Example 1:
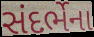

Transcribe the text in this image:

સંદર્ભેના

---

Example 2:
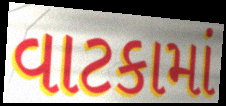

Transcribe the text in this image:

વાટકામાં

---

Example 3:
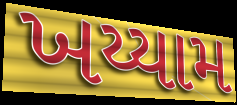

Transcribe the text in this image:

ખય્યામ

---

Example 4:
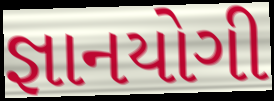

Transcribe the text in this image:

જ્ઞાનયોગી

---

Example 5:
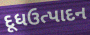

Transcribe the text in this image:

દૂધઉત્પાદન